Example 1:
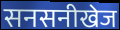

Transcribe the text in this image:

सनसनीखेज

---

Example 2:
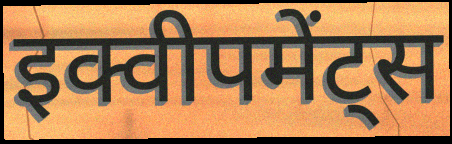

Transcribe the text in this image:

इक्वीपमेंट्स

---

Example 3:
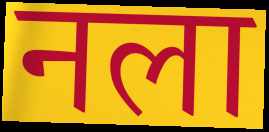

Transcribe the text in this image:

नला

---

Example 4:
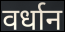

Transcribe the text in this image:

वर्धान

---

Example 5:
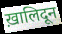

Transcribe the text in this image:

ख़ालिदून